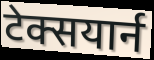
टेक्सयार्न